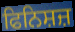
ਫਿਨਿਸ਼ਜ਼